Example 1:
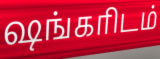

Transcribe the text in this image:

ஷங்கரிடம்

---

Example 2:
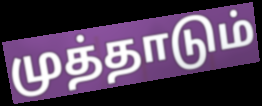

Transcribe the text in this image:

முத்தாடும்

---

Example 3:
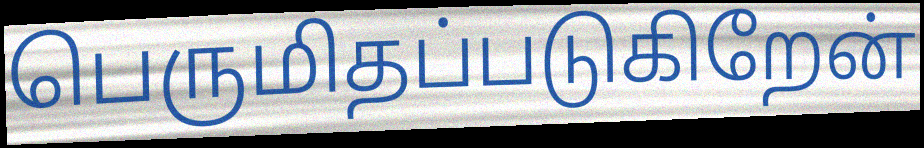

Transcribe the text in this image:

பெருமிதப்படுகிறேன்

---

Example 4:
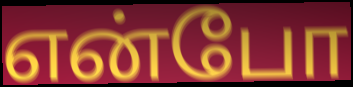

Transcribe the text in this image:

என்போ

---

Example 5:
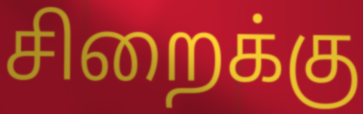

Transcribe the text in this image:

சிறைக்கு